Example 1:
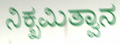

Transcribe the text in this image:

ನಿಕ್ಖಮಿತ್ವಾನ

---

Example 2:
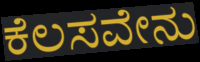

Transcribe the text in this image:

ಕೆಲಸವೇನು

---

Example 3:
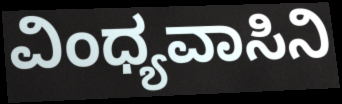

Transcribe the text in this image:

ವಿಂಧ್ಯವಾಸಿನಿ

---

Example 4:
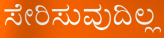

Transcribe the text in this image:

ಸೇರಿಸುವುದಿಲ್ಲ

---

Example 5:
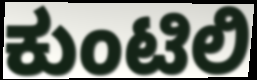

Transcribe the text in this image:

ಕುಂಟಿಲಿ